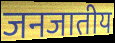
जनजातीय